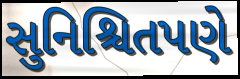
સુનિશ્ચિતપણે